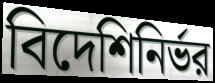
বিদেশিনির্ভর